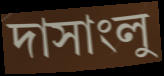
দাসাংলু